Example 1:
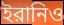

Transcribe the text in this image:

ইরানিও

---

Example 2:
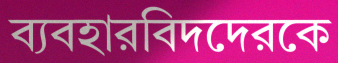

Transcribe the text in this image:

ব্যবহারবিদদেরকে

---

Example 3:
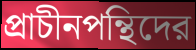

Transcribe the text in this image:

প্রাচীনপন্থিদের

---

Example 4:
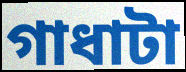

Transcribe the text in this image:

গাধাটা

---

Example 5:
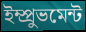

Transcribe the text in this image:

ইম্প্রুভমেন্ট